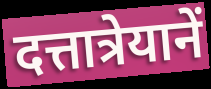
दत्तात्रेयानें